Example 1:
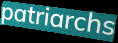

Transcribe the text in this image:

patriarchs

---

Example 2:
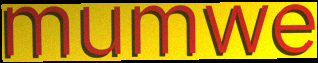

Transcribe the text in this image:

mumwe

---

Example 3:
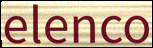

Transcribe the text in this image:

elenco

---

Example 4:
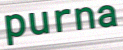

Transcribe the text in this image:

purna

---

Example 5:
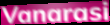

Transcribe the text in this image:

Vanarasi